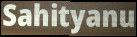
Sahityanu